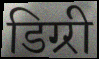
डिग्र्री